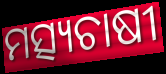
ମତ୍ସ୍ୟଚାଷୀ